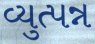
વ્યુત્પન્ન